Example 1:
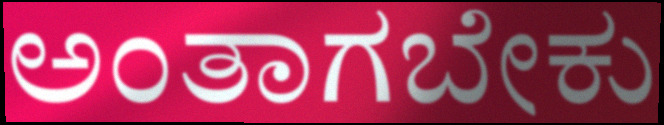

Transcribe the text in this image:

ಅಂತಾಗಬೇಕು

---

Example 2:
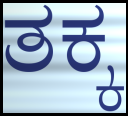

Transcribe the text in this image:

ತಕ್ಕ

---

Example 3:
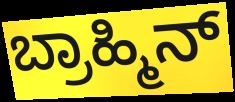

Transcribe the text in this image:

ಬ್ರಾಹ್ಮಿನ್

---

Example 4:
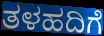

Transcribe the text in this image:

ತಳಹದಿಗೆ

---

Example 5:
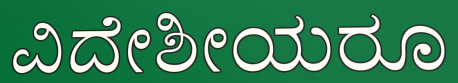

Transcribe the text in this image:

ವಿದೇಶೀಯರೂ